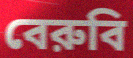
বেরুবি